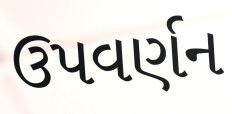
ઉપવર્ણન